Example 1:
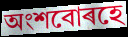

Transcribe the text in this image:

অংশবোৰহে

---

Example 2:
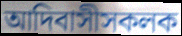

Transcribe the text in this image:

আদিবাসীসকলক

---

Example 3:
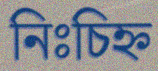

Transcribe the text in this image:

নিঃচিহ্ন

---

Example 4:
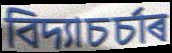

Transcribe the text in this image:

বিদ্যাচৰ্চাৰ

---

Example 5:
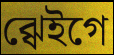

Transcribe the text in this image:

ঝ্ৱেইগে